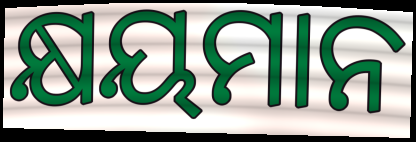
କ୍ଷୟମାନ